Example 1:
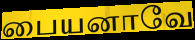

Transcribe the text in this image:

பையனாவே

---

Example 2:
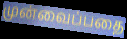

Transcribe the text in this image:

முன்வைப்பதை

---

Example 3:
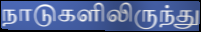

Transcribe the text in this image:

நாடுகளிலிருந்து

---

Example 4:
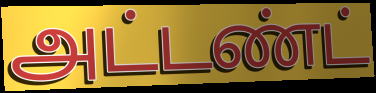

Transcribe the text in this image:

அட்டண்ட்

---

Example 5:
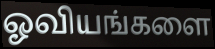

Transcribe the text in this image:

ஓவியங்களை